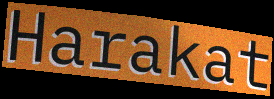
Harakat